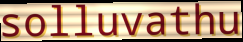
solluvathu